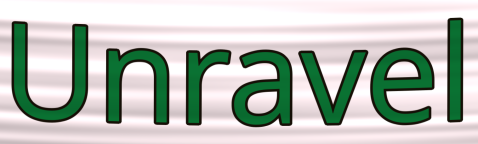
Unravel